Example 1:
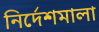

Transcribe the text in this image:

নির্দেশমালা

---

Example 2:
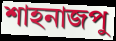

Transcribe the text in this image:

শাহনাজপু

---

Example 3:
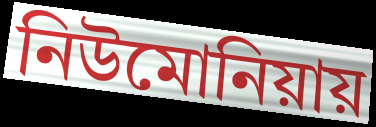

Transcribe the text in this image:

নিউমোনিয়ায়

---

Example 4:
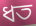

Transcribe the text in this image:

ধত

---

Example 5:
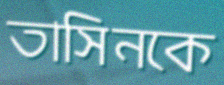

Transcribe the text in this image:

তাসিনকে